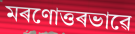
মৰণোত্তৰভাৱে